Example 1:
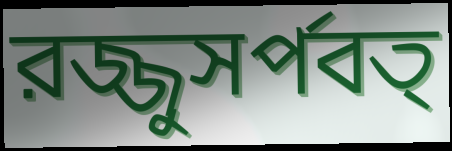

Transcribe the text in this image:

রজ্জুসর্পবত্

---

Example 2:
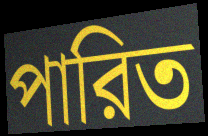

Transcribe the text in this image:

পারিত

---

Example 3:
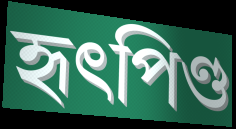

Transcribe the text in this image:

হৃৎপিণ্ড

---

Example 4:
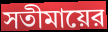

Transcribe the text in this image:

সতীমায়ের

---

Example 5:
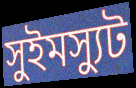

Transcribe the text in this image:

সুইমস্যুট